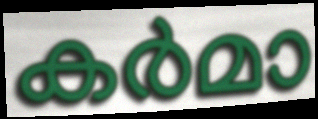
കർമാ